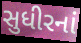
સુધીરનાં